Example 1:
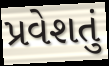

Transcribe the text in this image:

પ્રવેશતું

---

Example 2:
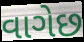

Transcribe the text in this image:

વાગેછ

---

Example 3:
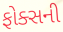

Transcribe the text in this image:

ફોક્સની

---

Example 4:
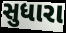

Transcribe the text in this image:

સુધારા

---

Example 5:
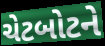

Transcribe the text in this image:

ચેટબોટને